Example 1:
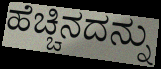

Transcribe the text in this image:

ಹೆಚ್ಚಿನದನ್ನು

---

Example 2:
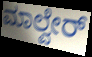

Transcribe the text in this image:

ಮಾಲ್ವೇರ್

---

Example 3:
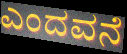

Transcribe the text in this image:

ಎಂದವನೆ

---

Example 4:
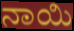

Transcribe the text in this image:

ನಾಯಿ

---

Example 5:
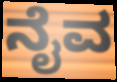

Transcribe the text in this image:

ನೈವ